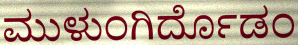
ಮುಳುಂಗಿರ್ದೊಡಂ